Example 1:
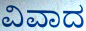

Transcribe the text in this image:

ವಿವಾದ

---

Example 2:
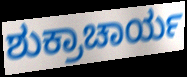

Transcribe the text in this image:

ಶುಕ್ರಾಚಾರ್ಯ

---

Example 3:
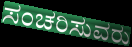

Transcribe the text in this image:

ಸಂಚರಿಸುವರು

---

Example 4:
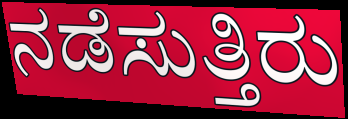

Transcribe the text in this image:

ನಡೆಸುತ್ತಿರು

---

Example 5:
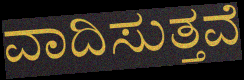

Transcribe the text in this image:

ವಾದಿಸುತ್ತವೆ